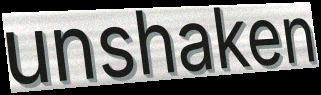
unshaken